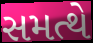
સમત્થે